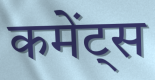
कमेंट्स